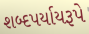
શબ્દપર્યાયરૂપે